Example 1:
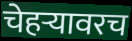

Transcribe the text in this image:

चेहर्‍यावरच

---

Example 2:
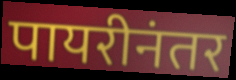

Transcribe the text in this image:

पायरीनंतर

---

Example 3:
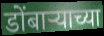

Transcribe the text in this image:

डोंबाऱ्याच्या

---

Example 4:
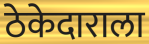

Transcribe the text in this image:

ठेकेदाराला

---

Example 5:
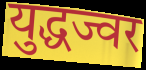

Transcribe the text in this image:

युद्धज्वर